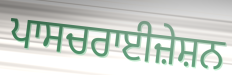
ਪਾਸਚਰਾਈਜ਼ੇਸ਼ਨ